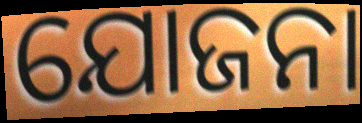
ଯୋଜନା